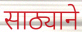
साठ्याने